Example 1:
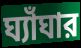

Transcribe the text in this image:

ঘ্যাঁঘার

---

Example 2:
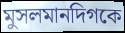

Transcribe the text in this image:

মুসলমানদিগকে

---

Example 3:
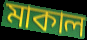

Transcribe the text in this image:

মাকাল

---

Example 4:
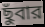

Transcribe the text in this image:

ছুঁবার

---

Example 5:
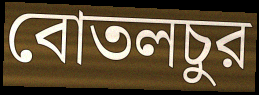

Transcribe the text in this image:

বোতলচুর